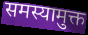
समस्यामुक्त